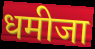
धमीजा